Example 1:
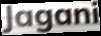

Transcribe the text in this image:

Jagani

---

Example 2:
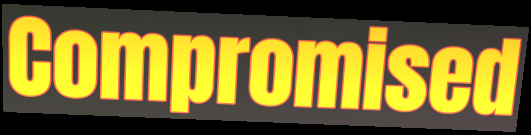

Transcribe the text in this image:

Compromised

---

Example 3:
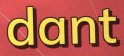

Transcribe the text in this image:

dant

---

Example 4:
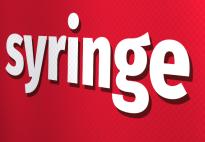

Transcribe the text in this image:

syringe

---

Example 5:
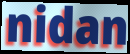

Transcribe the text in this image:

nidan